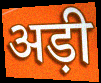
अड़ी